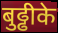
बुढ्ढीके